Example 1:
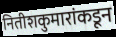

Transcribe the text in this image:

नितीशकुमारांकडून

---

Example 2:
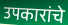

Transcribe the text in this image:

उपकारांचे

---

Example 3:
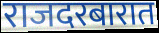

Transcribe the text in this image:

राजदरबारात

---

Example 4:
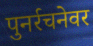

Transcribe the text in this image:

पुनर्रचनेवर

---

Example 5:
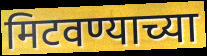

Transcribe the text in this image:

मिटवण्याच्या